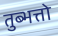
तुब्भत्तो